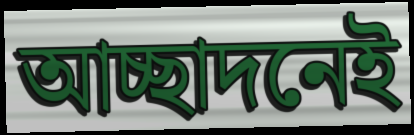
আচ্ছাদনেই